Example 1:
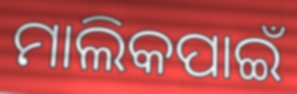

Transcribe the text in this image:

ମାଲିକପାଇଁ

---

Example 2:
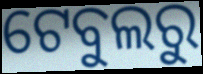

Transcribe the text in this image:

ଟେବୁଲରୁ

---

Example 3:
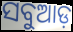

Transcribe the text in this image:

ସବୁଆଡ଼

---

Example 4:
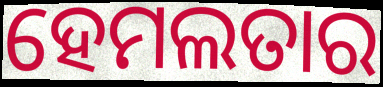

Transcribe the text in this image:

ହେମଲତାର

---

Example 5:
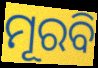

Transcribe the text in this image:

ମୂରବି